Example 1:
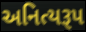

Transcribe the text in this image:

અનિત્યરૂપ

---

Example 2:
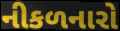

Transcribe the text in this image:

નીકળનારો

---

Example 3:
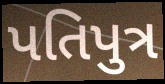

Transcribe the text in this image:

પતિપુત્ર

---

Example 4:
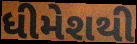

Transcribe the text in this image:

ધીમેશથી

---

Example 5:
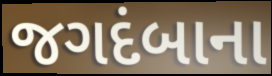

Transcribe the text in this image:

જગદંબાના